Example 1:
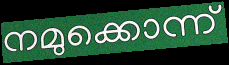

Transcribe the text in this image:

നമുക്കൊന്ന്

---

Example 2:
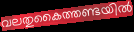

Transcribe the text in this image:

വലതുകൈത്തണ്ടയിൽ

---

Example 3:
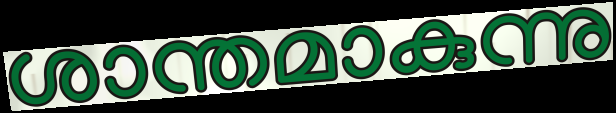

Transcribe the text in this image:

ശാന്തമാകുന്നു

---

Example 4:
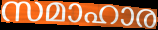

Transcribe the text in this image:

സമാഹാര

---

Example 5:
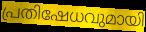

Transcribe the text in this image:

പ്രതിഷേധവുമായി